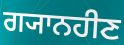
ਗ੍ਯਾਨਹੀਣ